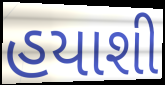
હયાશી